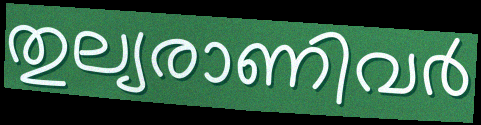
തുല്യരാണിവർ